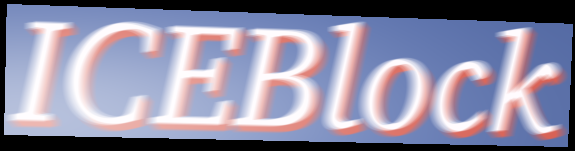
ICEBlock